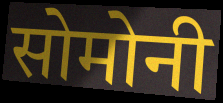
सोमोनी